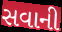
સવાની